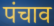
पंचाव